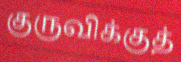
குருவிக்குத்